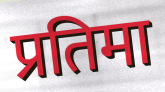
प्रतिमा